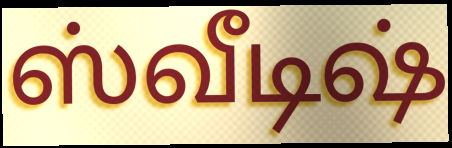
ஸ்வீடிஷ்